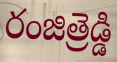
రంజిత్రెడ్డి